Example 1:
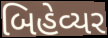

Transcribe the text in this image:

બિહેવ્યર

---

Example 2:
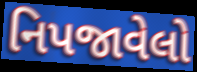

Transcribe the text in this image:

નિપજાવેલો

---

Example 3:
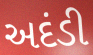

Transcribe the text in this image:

અદંડી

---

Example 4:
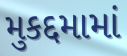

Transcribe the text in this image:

મુકદ્દમામાં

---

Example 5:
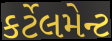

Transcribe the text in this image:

કર્ટેલમેન્ટ